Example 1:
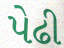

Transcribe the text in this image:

પેઢી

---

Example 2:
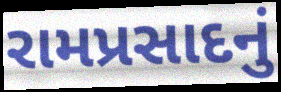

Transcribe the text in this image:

રામપ્રસાદનું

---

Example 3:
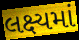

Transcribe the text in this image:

લક્ષ્યમાં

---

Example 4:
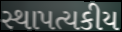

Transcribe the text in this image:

સ્થાપત્યકીય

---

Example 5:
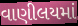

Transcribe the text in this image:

વાણીલયમાં